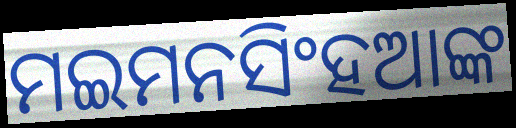
ମଇମନସିଂହଆଙ୍କ